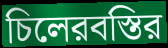
চিলেরবস্তির